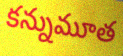
కన్నుమూత